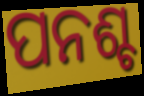
ପନଶ୍ଚ